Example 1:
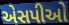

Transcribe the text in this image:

એસપીઓ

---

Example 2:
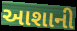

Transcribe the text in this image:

આશાની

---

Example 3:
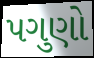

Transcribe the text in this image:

પગુણો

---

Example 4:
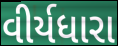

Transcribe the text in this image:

વીર્યધારા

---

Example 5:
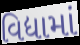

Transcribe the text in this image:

વિદ્યામાં